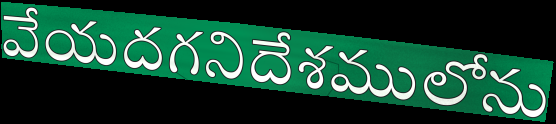
వేయదగనిదేశములోను